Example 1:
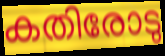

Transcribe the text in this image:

കതിരോടു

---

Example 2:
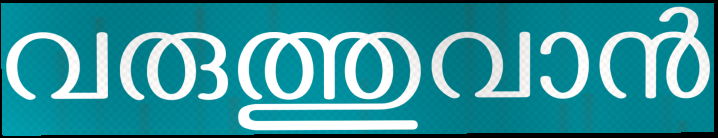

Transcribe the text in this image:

വരുത്തുവാൻ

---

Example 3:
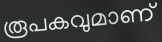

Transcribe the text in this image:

രൂപകവുമാണ്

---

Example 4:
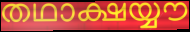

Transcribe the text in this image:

തഥാക്ഷയ്യൗ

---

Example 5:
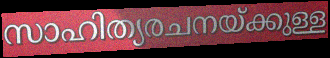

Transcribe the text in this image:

സാഹിത്യരചനയ്ക്കുള്ള